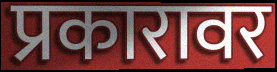
प्रकारावर